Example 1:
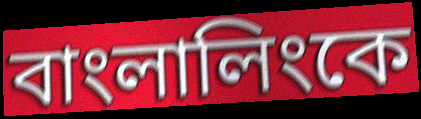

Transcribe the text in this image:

বাংলালিংকে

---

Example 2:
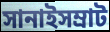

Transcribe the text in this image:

সানাইসম্রাট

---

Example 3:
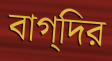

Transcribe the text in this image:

বাগ্‌দির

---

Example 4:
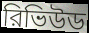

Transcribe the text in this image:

রিভিউড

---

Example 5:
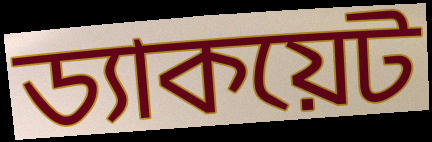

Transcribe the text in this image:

ড্যাকয়েট